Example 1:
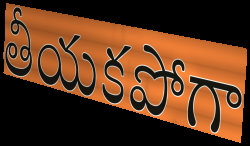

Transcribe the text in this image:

తీయకపోగా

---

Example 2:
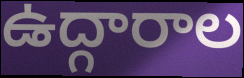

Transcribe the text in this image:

ఉద్గారాల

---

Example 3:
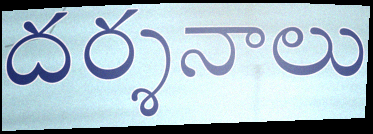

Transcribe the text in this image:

దర్శనాలు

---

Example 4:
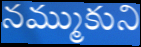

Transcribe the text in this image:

నమ్ముకుని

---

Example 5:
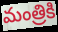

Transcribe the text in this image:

మంత్రికి